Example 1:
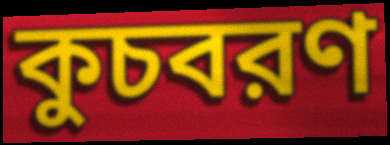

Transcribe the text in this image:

কুচবরণ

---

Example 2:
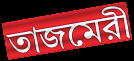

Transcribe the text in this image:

তাজমেরী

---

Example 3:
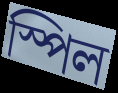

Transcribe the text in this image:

স্পিল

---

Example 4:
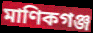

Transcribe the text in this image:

মাণিকগঞ্জ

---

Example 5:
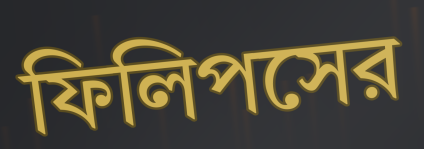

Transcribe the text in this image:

ফিলিপসের